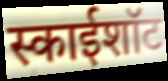
स्काईशॉट